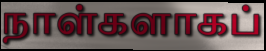
நாள்களாகப்